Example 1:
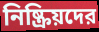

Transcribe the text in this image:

নিষ্ক্রিয়দের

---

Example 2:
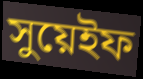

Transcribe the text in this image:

সুয়েইফ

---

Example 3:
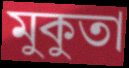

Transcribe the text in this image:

মুকুতা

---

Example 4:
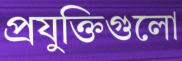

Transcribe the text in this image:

প্রযুক্তিগুলো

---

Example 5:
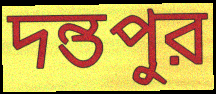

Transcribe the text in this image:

দন্তপুর